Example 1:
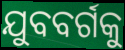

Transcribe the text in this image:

ଯୁବବର୍ଗକୁ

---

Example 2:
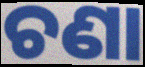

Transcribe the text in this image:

ଚଣା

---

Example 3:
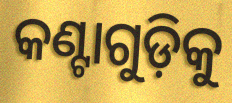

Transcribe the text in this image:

କଣ୍ଟାଗୁଡ଼ିକୁ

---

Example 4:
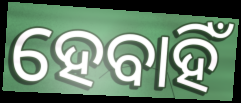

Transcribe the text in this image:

ହେବାହିଁ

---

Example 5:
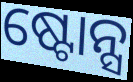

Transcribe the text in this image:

ଷ୍ଟୋନ୍ସ